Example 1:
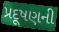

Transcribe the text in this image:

પ્રદૂષણની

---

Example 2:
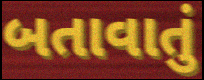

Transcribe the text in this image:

બતાવાતું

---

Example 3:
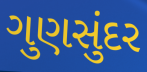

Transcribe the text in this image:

ગુણસુંદર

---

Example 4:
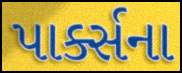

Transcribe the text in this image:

પાર્ક્સના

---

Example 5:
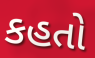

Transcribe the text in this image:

કહતો